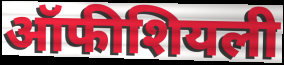
ऑफीशियली